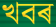
খবৰ